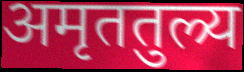
अमृततुल्य